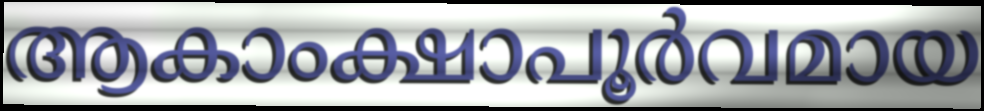
ആകാംക്ഷാപൂർവമായ